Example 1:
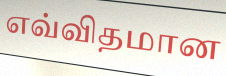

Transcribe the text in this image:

எவ்விதமான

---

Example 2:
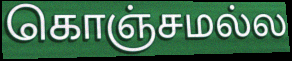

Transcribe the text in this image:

கொஞ்சமல்ல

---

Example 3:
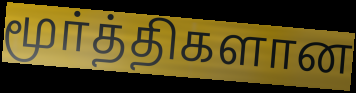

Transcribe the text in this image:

மூர்த்திகளான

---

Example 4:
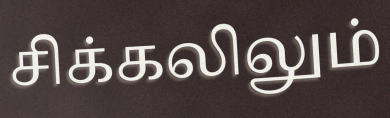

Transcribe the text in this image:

சிக்கலிலும்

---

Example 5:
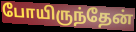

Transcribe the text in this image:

போயிருந்தேன்